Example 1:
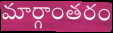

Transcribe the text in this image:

మార్గాంతరం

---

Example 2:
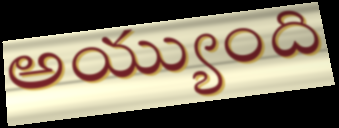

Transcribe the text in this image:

అయ్యుంది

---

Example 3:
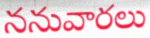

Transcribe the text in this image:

ననువారలు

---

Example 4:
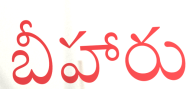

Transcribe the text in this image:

బీహారు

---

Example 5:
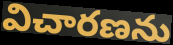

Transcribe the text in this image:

విచారణను